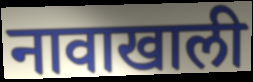
नावाखाली